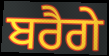
ਬਰੈਗੇ